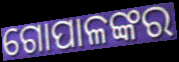
ଗୋପାଳଙ୍କର